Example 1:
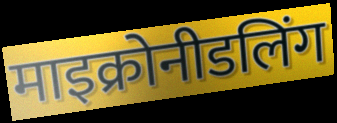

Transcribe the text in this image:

माइक्रोनीडलिंग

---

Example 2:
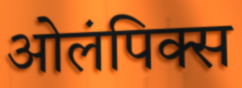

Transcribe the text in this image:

ओलंपिक्स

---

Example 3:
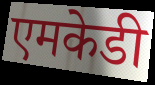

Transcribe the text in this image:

एमकेडी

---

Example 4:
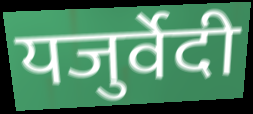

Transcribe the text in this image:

यजुर्वेदी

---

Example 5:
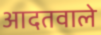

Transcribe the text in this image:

आदतवाले